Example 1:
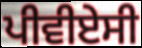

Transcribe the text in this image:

ਪੀਵੀਏਸੀ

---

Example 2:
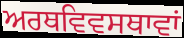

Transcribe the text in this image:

ਅਰਥਵਿਵਸਥਾਵਾਂ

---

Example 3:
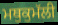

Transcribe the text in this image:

ਮਥੁਕੁਮੱਲੀ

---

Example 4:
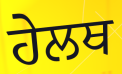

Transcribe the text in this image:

ਹੇਲਥ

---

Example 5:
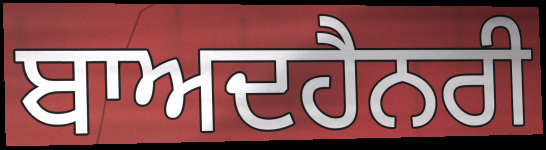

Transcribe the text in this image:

ਬਾਅਦਹੈਨਰੀ